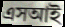
এসআই